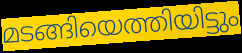
മടങ്ങിയെത്തിയിട്ടും